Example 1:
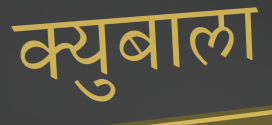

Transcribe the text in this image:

क्युबाला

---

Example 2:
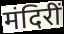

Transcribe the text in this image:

मंदिरीं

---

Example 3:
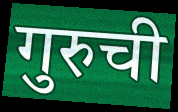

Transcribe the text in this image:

गुरुची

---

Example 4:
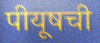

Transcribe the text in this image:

पीयूषची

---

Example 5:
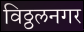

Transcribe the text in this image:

विठ्ठलनगर